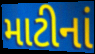
માટીનાં